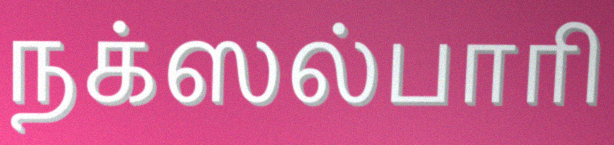
நக்ஸல்பாரி